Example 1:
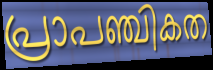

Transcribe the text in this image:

പ്രാപഞ്ചികത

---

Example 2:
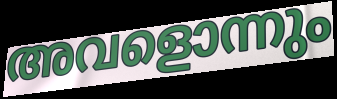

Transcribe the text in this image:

അവളൊന്നും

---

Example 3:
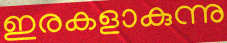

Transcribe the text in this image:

ഇരകളാകുന്നു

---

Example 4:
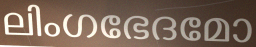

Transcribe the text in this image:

ലിംഗഭേദമോ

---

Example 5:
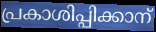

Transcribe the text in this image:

പ്രകാശിപ്പിക്കാന്